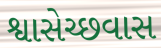
શ્વાસેચ્છવાસ